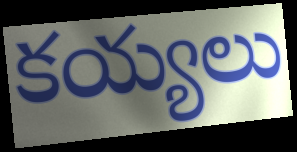
కయ్యలు